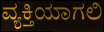
ವ್ಯಕ್ತಿಯಾಗಲಿ